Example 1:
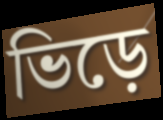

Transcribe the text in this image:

ভিড়ে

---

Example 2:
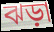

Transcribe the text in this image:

ঝড়া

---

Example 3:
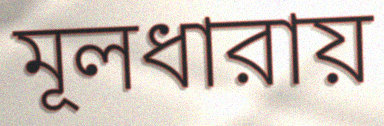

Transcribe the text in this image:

মূলধারায়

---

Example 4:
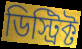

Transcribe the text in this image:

ডিস্ট্রিক্ট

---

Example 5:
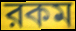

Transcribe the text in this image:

রকম